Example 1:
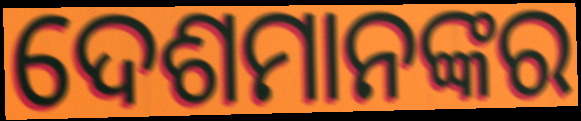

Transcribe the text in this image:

ଦେଶମାନଙ୍କର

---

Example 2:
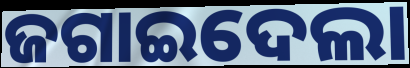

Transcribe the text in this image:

ଜଗାଇଦେଲା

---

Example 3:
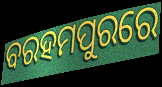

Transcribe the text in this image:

ବରହମପୁରରେ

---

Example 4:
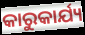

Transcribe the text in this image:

କାରୁକାର୍ଯ୍ୟ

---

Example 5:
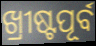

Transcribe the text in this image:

ଖ୍ରୀଷ୍ଟପୂର୍ବ